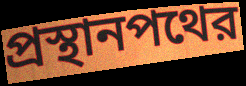
প্রস্থানপথের